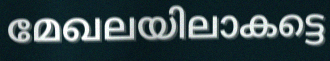
മേഖലയിലാകട്ടെ